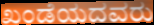
ಖಂಡೆಯದವರು